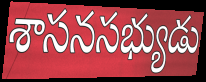
శాసనసభ్యుడు